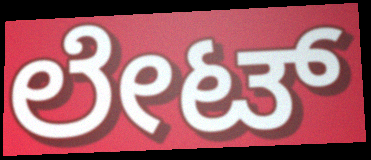
ಲೇಟ್